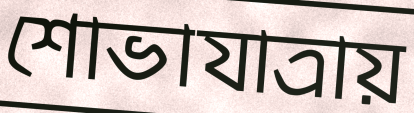
শোভাযাত্রায়